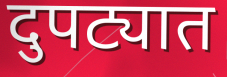
दुपट्यात